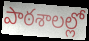
పాఠశాలల్లో